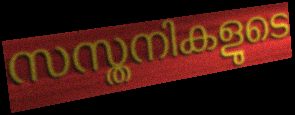
സസ്തനികളുടെ